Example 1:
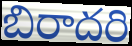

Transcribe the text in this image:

బిరాదరి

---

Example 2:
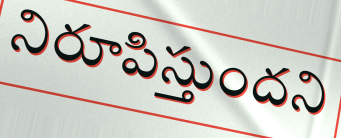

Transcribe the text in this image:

నిరూపిస్తుందని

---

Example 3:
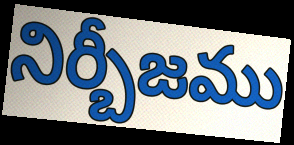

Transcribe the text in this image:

నిర్బీజము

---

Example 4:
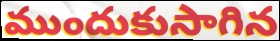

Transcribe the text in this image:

ముందుకుసాగిన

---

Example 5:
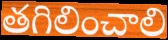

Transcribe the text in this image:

తగిలించాలి